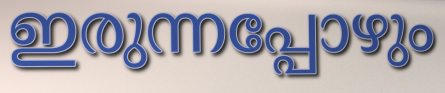
ഇരുന്നപ്പോഴും